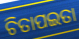
ଚିତାପଇତା